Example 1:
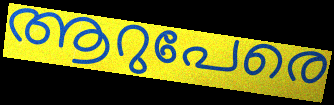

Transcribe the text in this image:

ആറുപേരെ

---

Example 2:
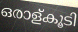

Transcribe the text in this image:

ഒരാള്കൂടി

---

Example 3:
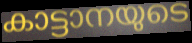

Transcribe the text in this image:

കാട്ടാനയുടെ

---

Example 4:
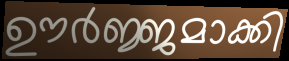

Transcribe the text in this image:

ഊർജ്ജമാക്കി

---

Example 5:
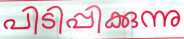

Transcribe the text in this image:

പിടിപ്പിക്കുന്നു